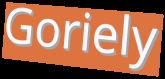
Goriely